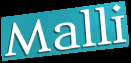
Malli